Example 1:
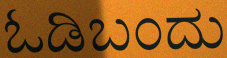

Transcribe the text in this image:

ಓಡಿಬಂದು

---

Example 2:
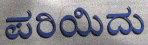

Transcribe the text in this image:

ಪರಿಯಿದು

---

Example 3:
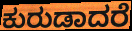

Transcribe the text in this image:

ಕುರುಡಾದರೆ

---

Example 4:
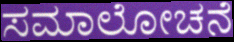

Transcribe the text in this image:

ಸಮಾಲೋಚನೆ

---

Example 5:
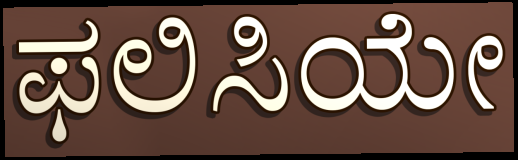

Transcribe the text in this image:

ಫಲಿಸಿಯೇ